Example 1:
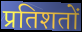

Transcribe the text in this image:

प्रतिशतों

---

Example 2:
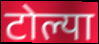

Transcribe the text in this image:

टोल्या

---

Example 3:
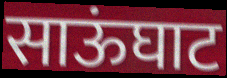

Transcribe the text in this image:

साऊंघाट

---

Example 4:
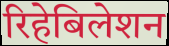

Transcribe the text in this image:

रिहेबिलेशन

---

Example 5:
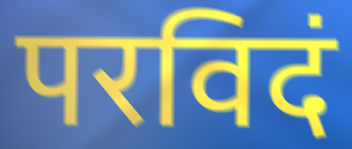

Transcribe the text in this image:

परविदं